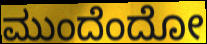
ಮುಂದೆಂದೋ